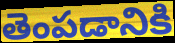
తెంపడానికి